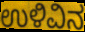
ಉಳಿವಿನ